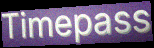
Timepass